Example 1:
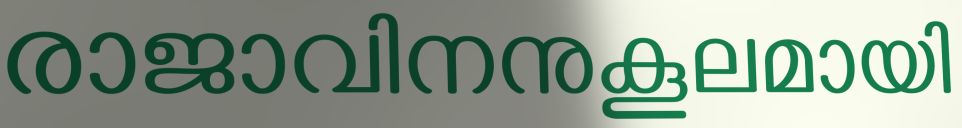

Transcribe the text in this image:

രാജാവിനനുകൂലമായി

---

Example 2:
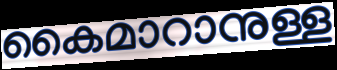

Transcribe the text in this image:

കൈമാറാനുള്ള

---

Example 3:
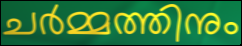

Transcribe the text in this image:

ചർമ്മത്തിനും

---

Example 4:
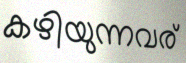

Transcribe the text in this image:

കഴിയുന്നവര്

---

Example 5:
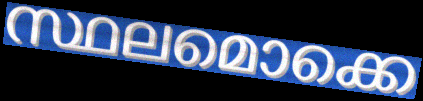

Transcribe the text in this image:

സ്ഥലമൊക്കെ